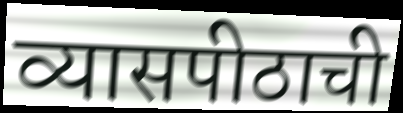
व्यासपीठाची